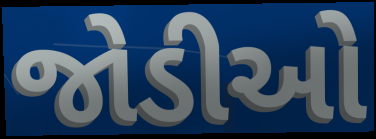
જોડીઓ